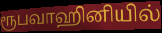
ரூபவாஹினியில்